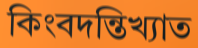
কিংবদন্তিখ্যাত